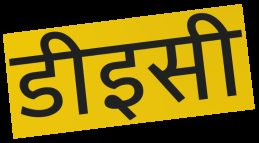
डीइसी